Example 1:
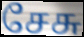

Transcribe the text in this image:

சேசு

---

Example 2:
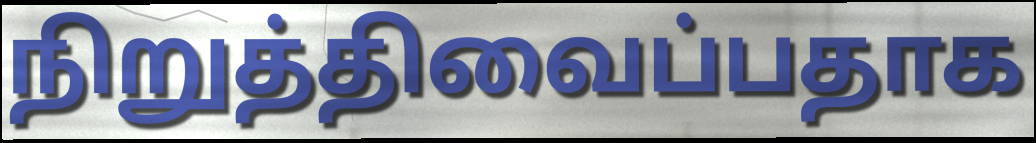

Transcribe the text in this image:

நிறுத்திவைப்பதாக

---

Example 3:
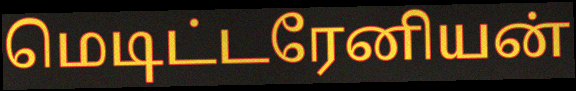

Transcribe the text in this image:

மெடிட்டரேனியன்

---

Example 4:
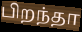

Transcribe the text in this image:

பிறந்தா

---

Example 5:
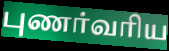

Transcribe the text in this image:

புணர்வரிய